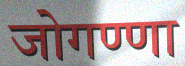
जोगण्णा